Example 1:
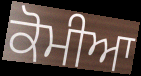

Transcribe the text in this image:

ਕੋਮੀਆ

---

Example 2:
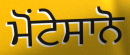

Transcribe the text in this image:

ਮੋਂਟੇਸਾਨੋ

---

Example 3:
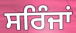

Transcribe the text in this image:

ਸਰਿੰਜਾਂ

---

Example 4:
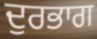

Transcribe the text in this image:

ਦੁਰਭਾਗ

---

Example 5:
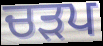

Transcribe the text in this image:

ਚੜਪ